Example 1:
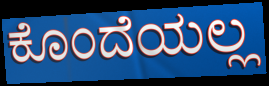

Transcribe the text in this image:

ಕೊಂದೆಯಲ್ಲ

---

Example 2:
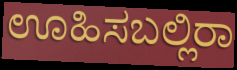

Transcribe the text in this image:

ಊಹಿಸಬಲ್ಲಿರಾ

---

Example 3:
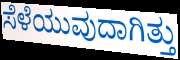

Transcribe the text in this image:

ಸೆಳೆಯುವುದಾಗಿತ್ತು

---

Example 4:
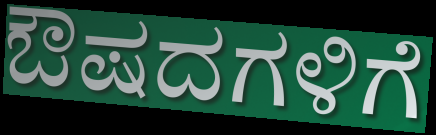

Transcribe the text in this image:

ಔಷದಗಳಿಗೆ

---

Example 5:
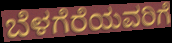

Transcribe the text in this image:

ಬೆಳಗೆರೆಯವರಿಗೆ